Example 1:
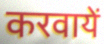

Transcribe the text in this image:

करवायें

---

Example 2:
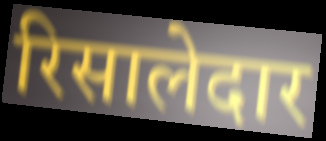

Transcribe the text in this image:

रिसालेदार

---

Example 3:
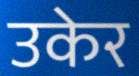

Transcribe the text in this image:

उकेर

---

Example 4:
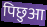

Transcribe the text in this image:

पिछुआ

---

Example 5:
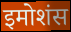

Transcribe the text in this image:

इमोशंस